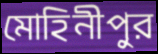
মোহিনীপুর